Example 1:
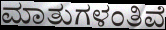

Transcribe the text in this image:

ಮಾತುಗಳಂತಿವೆ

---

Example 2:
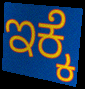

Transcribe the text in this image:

ಇಕ್ಕೆ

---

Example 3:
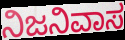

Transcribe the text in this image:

ನಿಜನಿವಾಸ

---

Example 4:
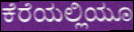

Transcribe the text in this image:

ಕೆರೆಯಲ್ಲಿಯೂ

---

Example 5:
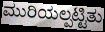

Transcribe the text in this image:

ಮುರಿಯಲ್ಪಟ್ಟಿತು